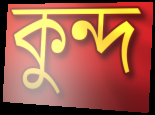
কুন্দ